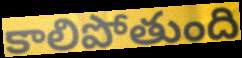
కాలిపోతుంది